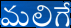
మలిగే